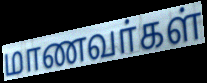
மாணவர்கள்